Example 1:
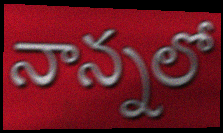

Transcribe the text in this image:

నాన్నలో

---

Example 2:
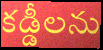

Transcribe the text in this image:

కడ్డీలను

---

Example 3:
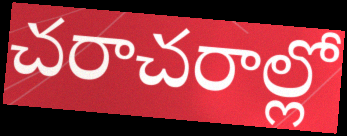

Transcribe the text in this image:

చరాచరాల్లో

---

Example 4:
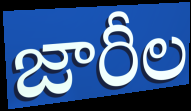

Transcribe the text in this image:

జారీల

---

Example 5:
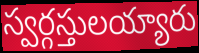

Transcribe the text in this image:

స్వర్గస్తులయ్యారు